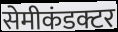
सेमीकंडक्टर